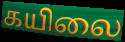
கயிலை